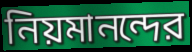
নিয়মানন্দের